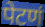
पेटणं